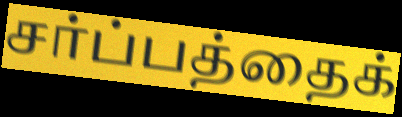
சர்ப்பத்தைக்